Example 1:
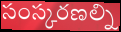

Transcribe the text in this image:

సంస్కరణల్ని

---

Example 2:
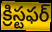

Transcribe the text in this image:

క్రిస్టఫర్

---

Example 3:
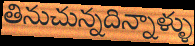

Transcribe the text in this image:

తినుచున్నదిన్నాళ్ళు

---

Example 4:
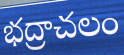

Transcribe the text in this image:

భద్రాచలం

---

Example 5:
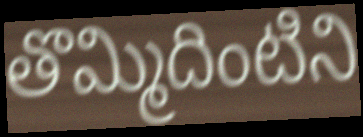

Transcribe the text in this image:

తొమ్మిదింటిని